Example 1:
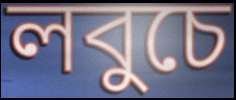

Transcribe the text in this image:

লবুচে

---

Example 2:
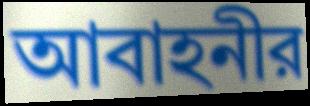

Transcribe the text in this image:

আবাহনীর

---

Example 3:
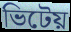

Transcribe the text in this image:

ভিটেয়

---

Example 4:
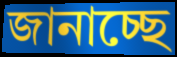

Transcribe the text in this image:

জানাচ্ছে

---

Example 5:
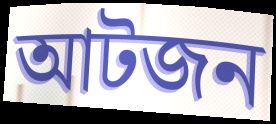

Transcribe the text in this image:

আটজন